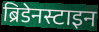
ब्रिडेनस्टाइन